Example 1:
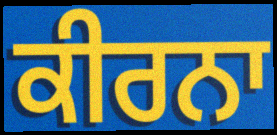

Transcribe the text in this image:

ਕੀਰਨਾ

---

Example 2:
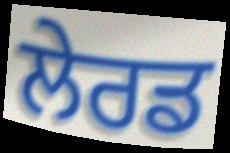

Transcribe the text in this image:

ਲੇਰਡ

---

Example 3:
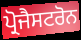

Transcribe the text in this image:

ਪ੍ਰੋਜੈਸਟਰੋਨ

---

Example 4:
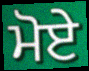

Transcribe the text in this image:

ਮੋਏ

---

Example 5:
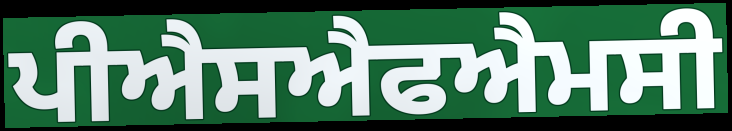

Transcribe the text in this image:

ਪੀਐਸਐਫਐਮਸੀ